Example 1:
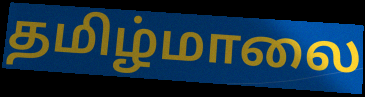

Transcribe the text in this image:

தமிழ்மாலை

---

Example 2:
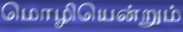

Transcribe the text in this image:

மொழியென்றும்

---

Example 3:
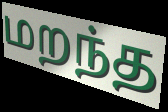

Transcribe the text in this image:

மறந்த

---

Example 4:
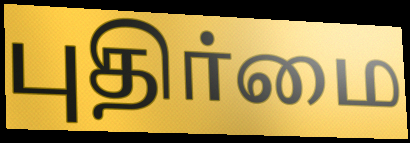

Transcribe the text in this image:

புதிர்மை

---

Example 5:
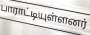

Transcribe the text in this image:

பாராட்டியுள்ளனர்